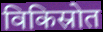
विकिस्रोत